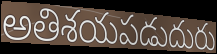
అతిశయపడుదురు